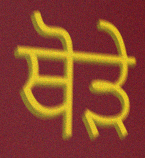
ਥੋਡ਼ੇ